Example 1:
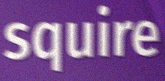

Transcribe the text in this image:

squire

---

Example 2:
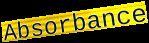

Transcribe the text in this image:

Absorbance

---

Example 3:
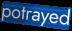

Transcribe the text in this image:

potrayed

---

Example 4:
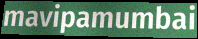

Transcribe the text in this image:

mavipamumbai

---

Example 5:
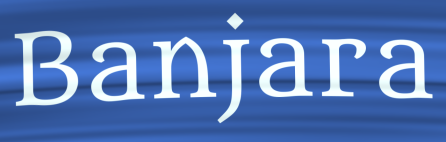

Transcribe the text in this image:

Banjara